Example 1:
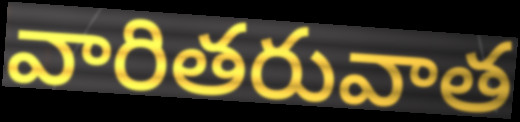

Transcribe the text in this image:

వారితరువాత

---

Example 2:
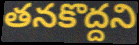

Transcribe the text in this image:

తనకొద్దని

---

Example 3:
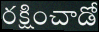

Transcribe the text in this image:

రక్షించాడో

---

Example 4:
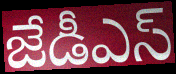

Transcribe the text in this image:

జేడీఎస్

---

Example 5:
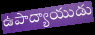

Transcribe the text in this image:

ఉపాద్యాయుడు